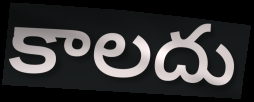
కాలదు